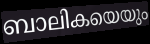
ബാലികയെയും